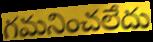
గమనించలేదు